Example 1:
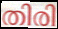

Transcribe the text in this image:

തിരി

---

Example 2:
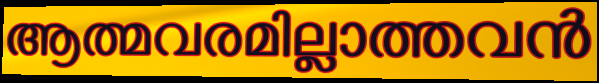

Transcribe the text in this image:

ആത്മവരമില്ലാത്തവൻ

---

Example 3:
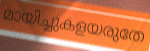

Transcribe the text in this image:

മായിച്ചുകളയരുതേ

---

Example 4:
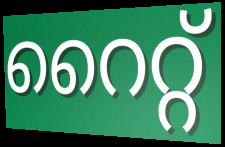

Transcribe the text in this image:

റൈറ്റ്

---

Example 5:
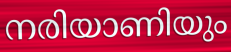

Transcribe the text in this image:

നരിയാണിയും